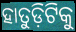
ହାତୁଡ଼ିଟିକୁ